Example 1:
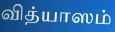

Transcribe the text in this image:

வித்யாஸம்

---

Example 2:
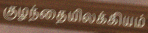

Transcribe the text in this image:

குழந்தையிலக்கியம்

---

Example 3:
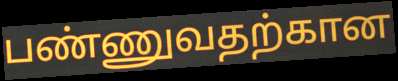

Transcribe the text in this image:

பண்ணுவதற்கான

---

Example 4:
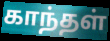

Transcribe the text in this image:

காந்தள்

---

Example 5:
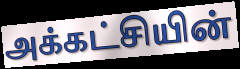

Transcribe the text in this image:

அக்கட்சியின்